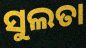
ସୁଲତା